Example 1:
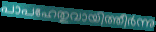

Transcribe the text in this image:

പാപഹേതുവായിത്തീർന്നു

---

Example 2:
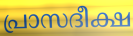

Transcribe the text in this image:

പ്രാസദീക്ഷ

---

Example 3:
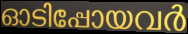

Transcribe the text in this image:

ഓടിപ്പോയവർ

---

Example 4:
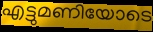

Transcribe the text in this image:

എട്ടുമണിയോടെ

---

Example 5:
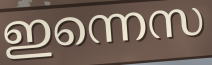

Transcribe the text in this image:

ഇന്നെസ